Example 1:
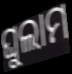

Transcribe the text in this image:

ଘୁଲାମ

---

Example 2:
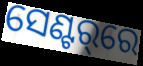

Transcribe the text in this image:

ସେଣ୍ଟର୍‌ରେ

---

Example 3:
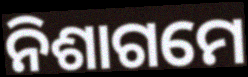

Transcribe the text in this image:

ନିଶାଗମେ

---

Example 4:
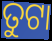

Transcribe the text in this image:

ତୁଟା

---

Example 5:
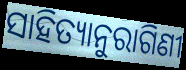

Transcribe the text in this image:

ସାହିତ୍ୟାନୁରାଗିଣୀ